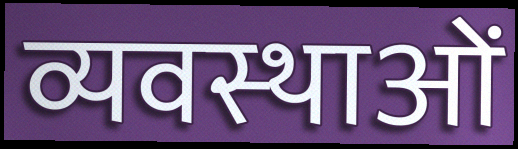
व्यवस्थाओें